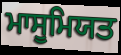
ਮਾਸੂਮਿਯਤ